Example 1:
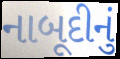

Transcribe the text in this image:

નાબૂદીનું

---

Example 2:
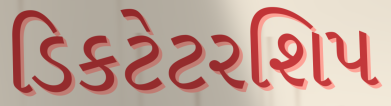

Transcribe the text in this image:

ડિકટેટરશિપ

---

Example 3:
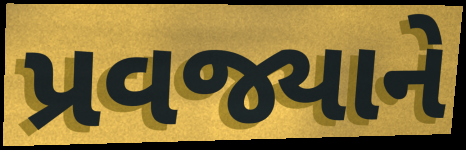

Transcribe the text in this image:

પ્રવજ્યાને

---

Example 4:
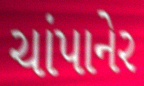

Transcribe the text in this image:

ચાંપાનેર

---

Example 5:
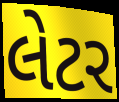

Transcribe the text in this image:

લેટર